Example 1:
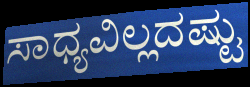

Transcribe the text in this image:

ಸಾಧ್ಯವಿಲ್ಲದಷ್ಟು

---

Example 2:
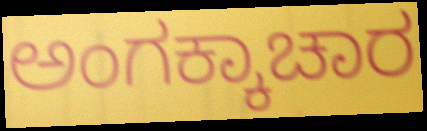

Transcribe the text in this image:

ಅಂಗಕ್ಕಾಚಾರ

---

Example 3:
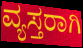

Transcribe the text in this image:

ವ್ಯಸ್ತರಾಗಿ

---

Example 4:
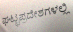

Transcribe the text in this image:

ಘಟ್ಟಪ್ರದೇಶಗಳಲ್ಲಿ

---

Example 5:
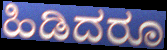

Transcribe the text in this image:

ಹಿಡಿದರೂ